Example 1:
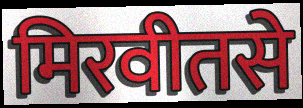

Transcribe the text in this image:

मिरवीतसे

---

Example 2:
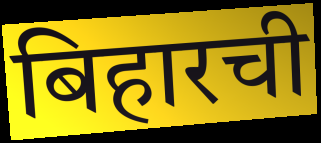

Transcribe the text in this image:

बिहारची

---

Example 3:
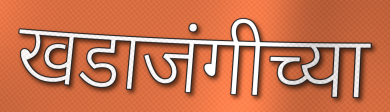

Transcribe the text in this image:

खडाजंगीच्या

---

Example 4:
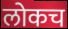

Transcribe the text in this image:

लोकच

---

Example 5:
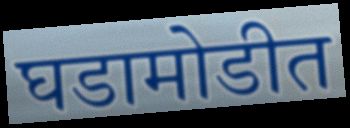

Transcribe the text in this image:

घडामोडीत